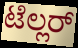
ಟೆಲ್ಲರ್